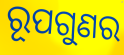
ରୂପଗୁଣର